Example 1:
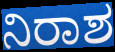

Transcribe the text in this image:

ನಿರಾಶ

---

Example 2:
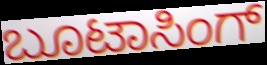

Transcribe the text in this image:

ಬೂಟಾಸಿಂಗ್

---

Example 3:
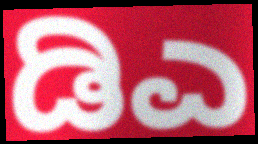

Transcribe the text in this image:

ಡಿಎ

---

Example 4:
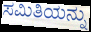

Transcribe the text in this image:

ಸಮಿತಿಯನ್ನು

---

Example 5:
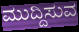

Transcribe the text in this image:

ಮುದ್ದಿಸುವ